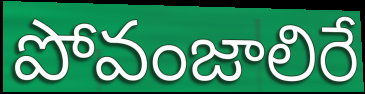
పోవంజాలిరే